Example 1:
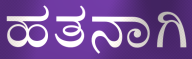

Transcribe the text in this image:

ಹತನಾಗಿ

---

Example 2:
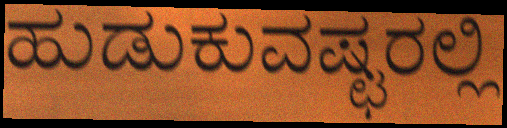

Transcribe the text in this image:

ಹುಡುಕುವಷ್ಟರಲ್ಲಿ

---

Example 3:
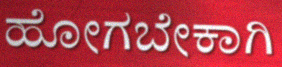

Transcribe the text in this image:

ಹೋಗಬೇಕಾಗಿ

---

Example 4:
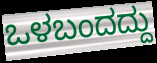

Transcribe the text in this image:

ಒಳಬಂದದ್ದು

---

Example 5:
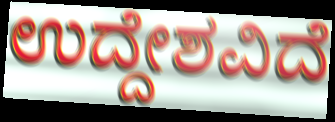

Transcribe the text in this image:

ಉದ್ದೇಶವಿದೆ